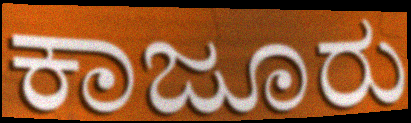
ಕಾಜೂರು